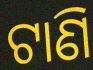
ଟାଣି